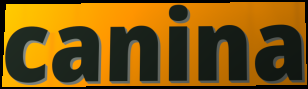
canina